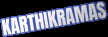
KARTHIKRAMAS